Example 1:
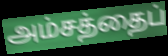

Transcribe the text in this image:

அம்சத்தைப்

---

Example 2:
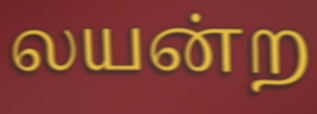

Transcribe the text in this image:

லயன்ற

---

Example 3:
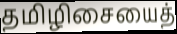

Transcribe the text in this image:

தமிழிசையைத்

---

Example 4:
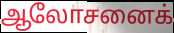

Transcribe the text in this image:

ஆலோசனைக்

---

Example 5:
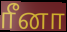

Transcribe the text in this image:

ரீனா